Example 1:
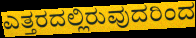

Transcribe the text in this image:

ಎತ್ತರದಲ್ಲಿರುವುದರಿಂದ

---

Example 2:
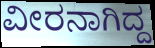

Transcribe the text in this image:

ವೀರನಾಗಿದ್ದ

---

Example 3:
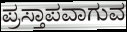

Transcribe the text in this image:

ಪ್ರಸ್ತಾಪವಾಗುವ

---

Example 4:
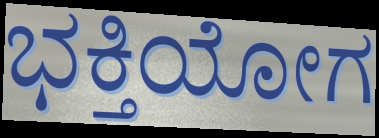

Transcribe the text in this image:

ಭಕ್ತಿಯೋಗ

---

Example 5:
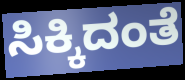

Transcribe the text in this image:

ಸಿಕ್ಕಿದಂತೆ